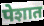
पेशात